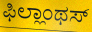
ಫಿಲ್ಲಾಂಥಸ್